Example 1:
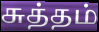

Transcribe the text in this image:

சுத்தம்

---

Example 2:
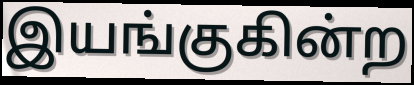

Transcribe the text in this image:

இயங்குகின்ற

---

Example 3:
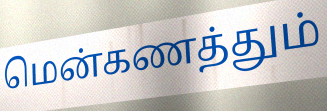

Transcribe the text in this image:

மென்கணத்தும்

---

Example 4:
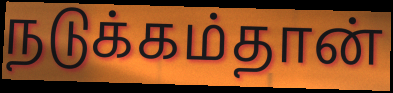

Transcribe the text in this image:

நடுக்கம்தான்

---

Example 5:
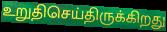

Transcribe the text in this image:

உறுதிசெய்திருக்கிறது